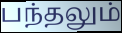
பந்தலும்